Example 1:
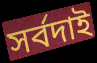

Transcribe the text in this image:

সর্বদাই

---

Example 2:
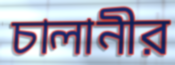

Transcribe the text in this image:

চালানীর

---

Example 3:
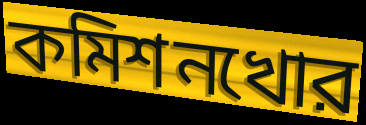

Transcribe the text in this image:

কমিশনখোর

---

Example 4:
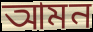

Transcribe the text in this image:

আমন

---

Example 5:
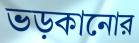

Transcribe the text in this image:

ভড়কানোর